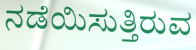
ನಡೆಯಿಸುತ್ತಿರುವ